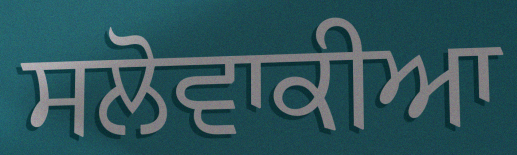
ਸਲੋਵਾਕੀਆ